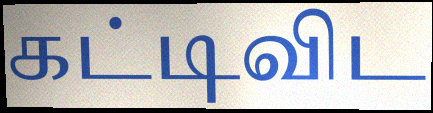
கட்டிவிட